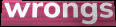
wrongs